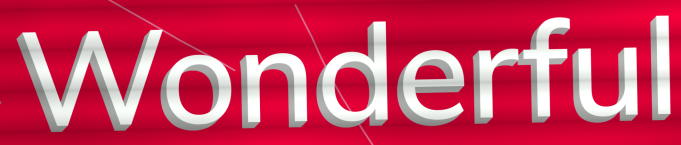
Wonderful